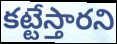
కట్టేస్తారని